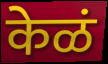
केळं